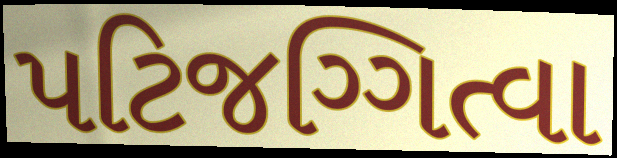
પટિજગ્ગિત્વા